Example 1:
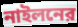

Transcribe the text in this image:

নাইলনের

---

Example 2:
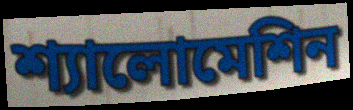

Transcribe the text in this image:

শ্যালোমেশিন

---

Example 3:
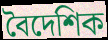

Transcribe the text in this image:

বৈদেশিক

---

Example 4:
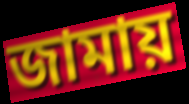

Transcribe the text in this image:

জামায়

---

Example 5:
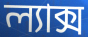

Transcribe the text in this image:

ল্যাক্স